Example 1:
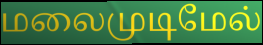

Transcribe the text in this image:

மலைமுடிமேல்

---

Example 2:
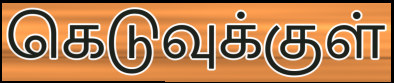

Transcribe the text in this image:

கெடுவுக்குள்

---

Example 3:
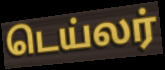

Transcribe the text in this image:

டெய்லர்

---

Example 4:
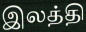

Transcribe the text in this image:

இலத்தி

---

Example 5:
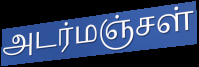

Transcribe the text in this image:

அடர்மஞ்சள்